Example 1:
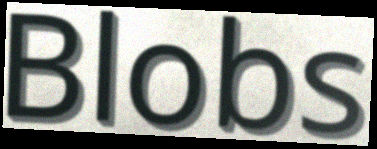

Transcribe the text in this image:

Blobs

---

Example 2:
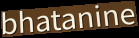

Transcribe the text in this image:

bhatanine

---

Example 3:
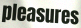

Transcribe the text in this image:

pleasures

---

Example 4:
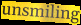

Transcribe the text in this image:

unsmiling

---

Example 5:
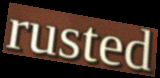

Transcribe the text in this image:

rusted